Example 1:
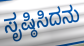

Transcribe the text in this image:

ಸೃಷ್ಠಿಸಿದನು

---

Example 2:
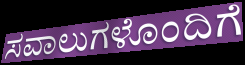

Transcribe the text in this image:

ಸವಾಲುಗಳೊಂದಿಗೆ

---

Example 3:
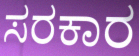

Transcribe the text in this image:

ಸರಕಾರ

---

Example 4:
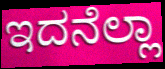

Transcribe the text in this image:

ಇದನೆಲ್ಲಾ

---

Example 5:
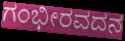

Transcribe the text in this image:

ಗಂಭೀರವದನ